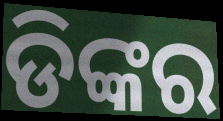
ଡିଙ୍କର